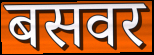
बसवर